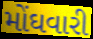
મોંઘવારી